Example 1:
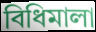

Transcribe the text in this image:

বিধিমালা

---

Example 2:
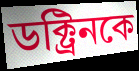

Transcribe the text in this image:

ডক্ট্রিনকে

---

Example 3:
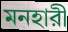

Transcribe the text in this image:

মনহারী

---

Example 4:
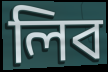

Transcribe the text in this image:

লিব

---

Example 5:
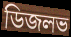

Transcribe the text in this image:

ডিজলভ